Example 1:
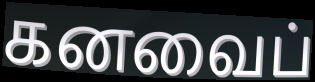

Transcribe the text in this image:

கனவைப்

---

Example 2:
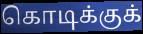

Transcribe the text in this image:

கொடிக்குக்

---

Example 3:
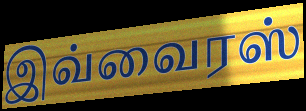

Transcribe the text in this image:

இவ்வைரஸ்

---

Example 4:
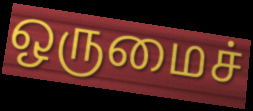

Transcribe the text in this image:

ஒருமைச்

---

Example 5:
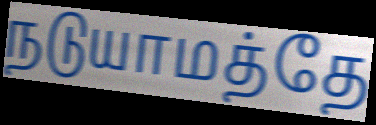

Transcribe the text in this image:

நடுயாமத்தே